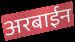
अरबाईन